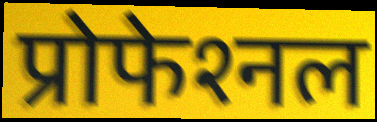
प्रोफेश्नल